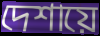
দেশায়ে